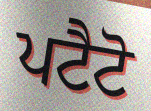
ਪਟੈਟੋ